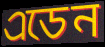
এডেন